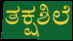
ತಕ್ಷಶಿಲೆ